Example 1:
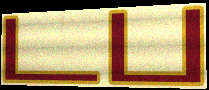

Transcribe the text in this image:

டப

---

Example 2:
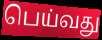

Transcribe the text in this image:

பெய்வது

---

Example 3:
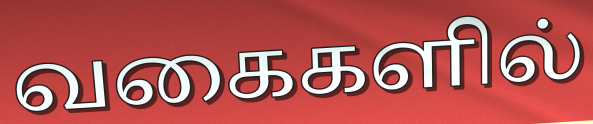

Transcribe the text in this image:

வகைகளில்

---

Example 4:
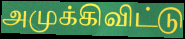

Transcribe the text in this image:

அமுக்கிவிட்டு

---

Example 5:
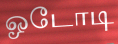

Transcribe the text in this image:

ஓடோடி